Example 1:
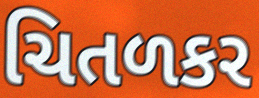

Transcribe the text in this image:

ચિતળકર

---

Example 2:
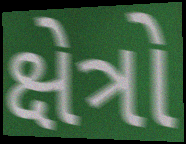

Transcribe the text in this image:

ક્ષેત્રો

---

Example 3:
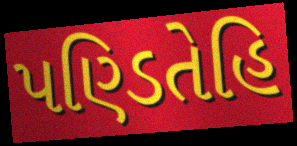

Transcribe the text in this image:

પણ્ડિતેહિ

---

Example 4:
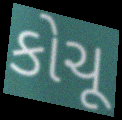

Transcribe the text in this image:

કોચૂ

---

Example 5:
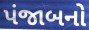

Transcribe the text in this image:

પંજાબનો